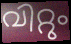
വിറ്റും